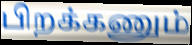
பிறக்கணும்